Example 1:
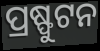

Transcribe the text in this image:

ପ୍ରଷ୍ଫୁଟନ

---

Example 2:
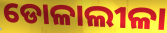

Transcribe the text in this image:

ଡୋଳାଲୀଳା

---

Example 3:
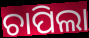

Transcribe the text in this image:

ଚାପିଲା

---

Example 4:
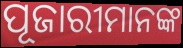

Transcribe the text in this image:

ପୂଜାରୀମାନଙ୍କ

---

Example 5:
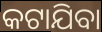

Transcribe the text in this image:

କଟାଯିବା